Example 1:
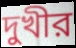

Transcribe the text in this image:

দুখীর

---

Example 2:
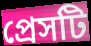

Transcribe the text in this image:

প্রেসটি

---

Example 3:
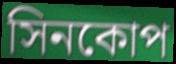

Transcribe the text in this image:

সিনকোপ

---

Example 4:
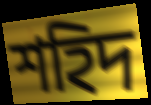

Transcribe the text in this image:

শহিদ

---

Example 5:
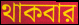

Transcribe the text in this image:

থাকবার